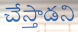
చేస్తాడని